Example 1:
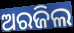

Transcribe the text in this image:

ଅରଜିଲ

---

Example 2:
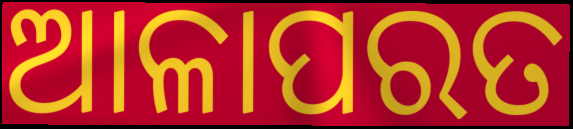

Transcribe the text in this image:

ଆଳାପରତ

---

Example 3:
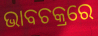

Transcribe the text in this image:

ଭାବଚକ୍ରରେ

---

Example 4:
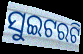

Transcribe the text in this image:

ସୁଇଟରଟି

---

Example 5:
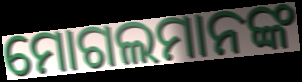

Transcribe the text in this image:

ମୋଗଲମାନଙ୍କ